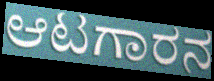
ಆಟಗಾರನ